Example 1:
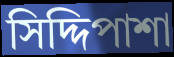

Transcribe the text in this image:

সিদ্দিপাশা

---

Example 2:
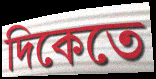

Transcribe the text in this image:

দিকেতে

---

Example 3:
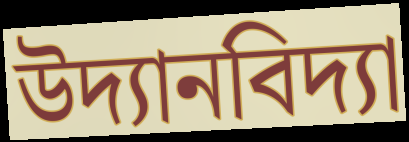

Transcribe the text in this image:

উদ্যানবিদ্যা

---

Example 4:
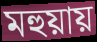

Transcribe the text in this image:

মহুয়ায়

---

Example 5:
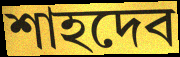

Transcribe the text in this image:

শাহদেব